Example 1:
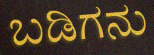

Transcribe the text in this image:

ಬಡಿಗನು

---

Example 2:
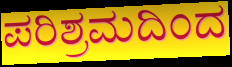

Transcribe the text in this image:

ಪರಿಶ್ರಮದಿಂದ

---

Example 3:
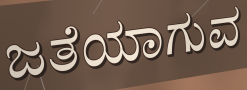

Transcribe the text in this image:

ಜತೆಯಾಗುವ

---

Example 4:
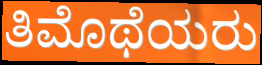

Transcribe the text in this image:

ತಿಮೊಥೆಯರು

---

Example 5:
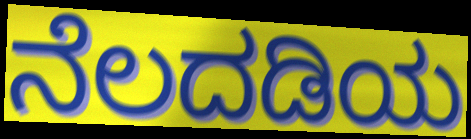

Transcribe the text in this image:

ನೆಲದಡಿಯ